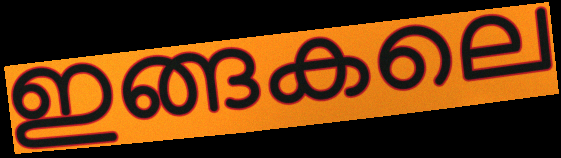
ഇങ്ങകലെ